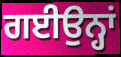
ਗਈਉਨ੍ਹਾਂ